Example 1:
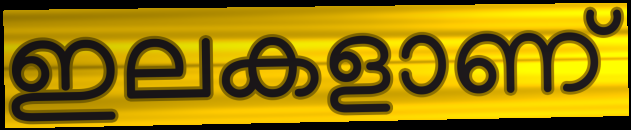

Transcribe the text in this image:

ഇലകളാണ്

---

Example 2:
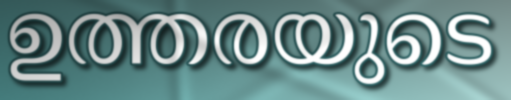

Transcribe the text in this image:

ഉത്തരയുടെ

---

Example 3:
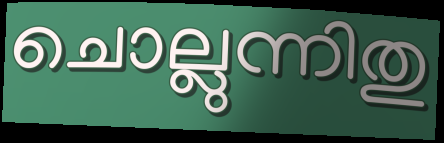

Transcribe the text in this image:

ചൊല്ലുന്നിതു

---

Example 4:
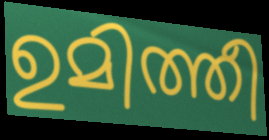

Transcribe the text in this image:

ഉമിത്തീ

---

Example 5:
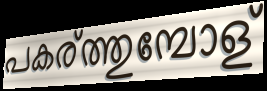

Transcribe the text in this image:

പകര്ത്തുമ്പോള്